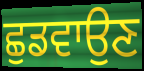
ਛੁਡਵਾਉਣ